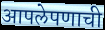
आपलेपणाची